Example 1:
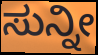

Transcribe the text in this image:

ಸುನ್ನೀ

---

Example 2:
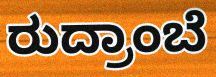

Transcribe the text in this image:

ರುದ್ರಾಂಬೆ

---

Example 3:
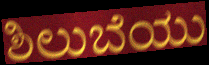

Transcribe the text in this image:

ಶಿಲುಬೆಯು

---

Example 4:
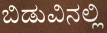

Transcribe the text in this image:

ಬಿಡುವಿನಲ್ಲಿ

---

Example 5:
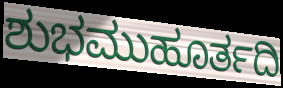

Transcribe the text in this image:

ಶುಭಮುಹೂರ್ತದಿ